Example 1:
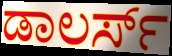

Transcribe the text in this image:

ಡಾಲರ್ಸ್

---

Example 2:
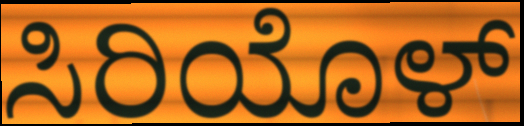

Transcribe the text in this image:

ಸಿರಿಯೊಳ್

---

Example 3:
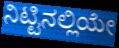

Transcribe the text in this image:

ನಿಟ್ಟಿನಲ್ಲಿಯೇ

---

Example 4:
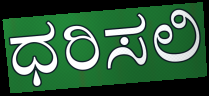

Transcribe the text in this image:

ಧರಿಸಲಿ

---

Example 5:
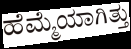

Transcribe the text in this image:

ಹೆಮ್ಮೆಯಾಗಿತ್ತು